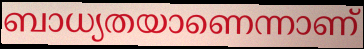
ബാധ്യതയാണെന്നാണ്